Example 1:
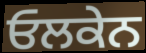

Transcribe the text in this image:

ਓਲਕੇਨ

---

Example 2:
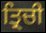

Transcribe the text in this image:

ਤ੍ਰਿਚੀ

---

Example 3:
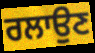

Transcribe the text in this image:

ਰਲਾਉਣ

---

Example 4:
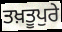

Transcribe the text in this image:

ਤਖ਼ਤੂਪੁਰੇ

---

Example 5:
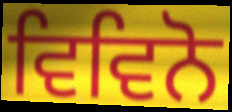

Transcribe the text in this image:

ਵਿਵਿਨੋ